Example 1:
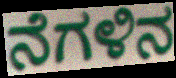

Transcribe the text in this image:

ನೆಗಳಿನ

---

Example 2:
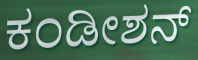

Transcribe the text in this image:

ಕಂಡೀಶನ್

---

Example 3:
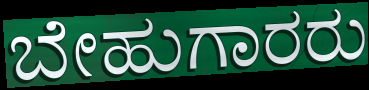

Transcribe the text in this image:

ಬೇಹುಗಾರರು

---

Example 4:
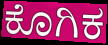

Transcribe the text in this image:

ಕೊಗಿಕ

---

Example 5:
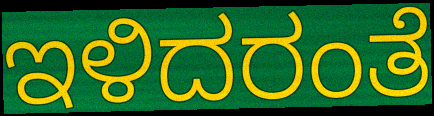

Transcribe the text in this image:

ಇಳಿದರಂತೆ